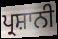
ਪ੍ਰਸ਼ਾਨੀ